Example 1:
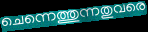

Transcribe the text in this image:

ചെന്നെത്തുന്നതുവരെ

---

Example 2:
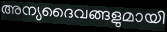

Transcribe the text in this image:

അന്യദൈവങ്ങളുമായി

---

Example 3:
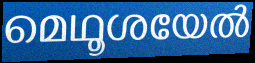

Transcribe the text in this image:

മെഥൂശയേൽ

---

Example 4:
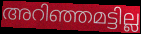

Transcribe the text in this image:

അറിഞ്ഞമട്ടില്ല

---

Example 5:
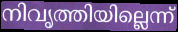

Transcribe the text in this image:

നിവൃത്തിയില്ലെന്ന്